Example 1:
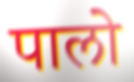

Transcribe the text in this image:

पालो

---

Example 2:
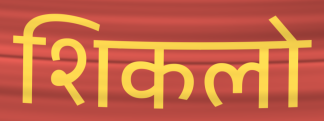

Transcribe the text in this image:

शिकलो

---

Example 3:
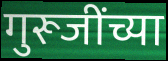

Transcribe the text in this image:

गुरूजींच्या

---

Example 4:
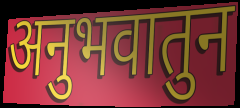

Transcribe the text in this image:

अनुभवातुन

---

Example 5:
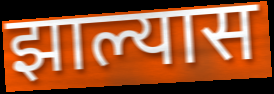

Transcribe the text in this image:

झाल्यास